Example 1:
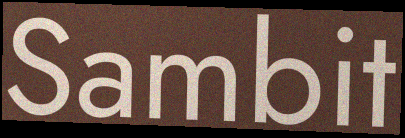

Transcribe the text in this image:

Sambit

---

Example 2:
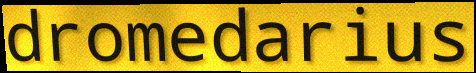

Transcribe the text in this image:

dromedarius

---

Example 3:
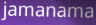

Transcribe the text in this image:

jamanama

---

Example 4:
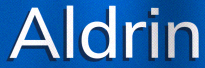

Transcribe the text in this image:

Aldrin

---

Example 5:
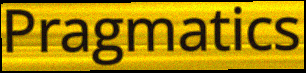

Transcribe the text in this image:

Pragmatics